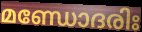
മണ്ഡോദരിഃ